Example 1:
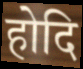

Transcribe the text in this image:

होदि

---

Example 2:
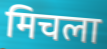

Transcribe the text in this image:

मिचला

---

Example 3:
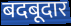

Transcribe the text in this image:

बदबूदार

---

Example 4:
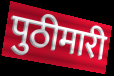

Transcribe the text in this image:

पुठीमारी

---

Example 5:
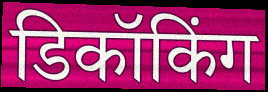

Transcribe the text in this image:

डिकॉकिंग